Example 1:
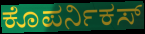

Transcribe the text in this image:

ಕೊಪರ್ನಿಕಸ್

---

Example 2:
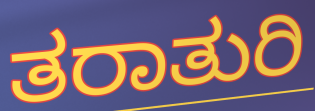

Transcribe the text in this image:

ತರಾತುರಿ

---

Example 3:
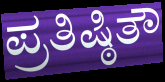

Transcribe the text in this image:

ಪ್ರತಿಷ್ಠಿತೌ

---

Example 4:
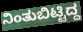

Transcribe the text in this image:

ನಿಂತುಬಿಟ್ಟಿದ್ದ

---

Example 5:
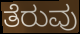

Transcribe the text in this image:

ತೆರುವು